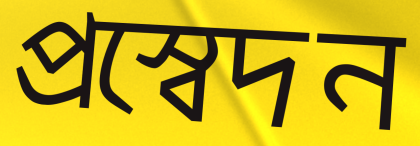
প্রস্বেদন